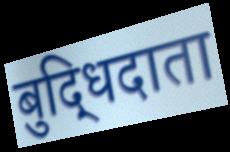
बुद्धिदाता